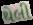
થેલી